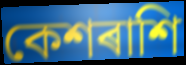
কেশৰাশি